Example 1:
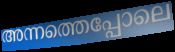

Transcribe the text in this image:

അന്നത്തെപ്പോലെ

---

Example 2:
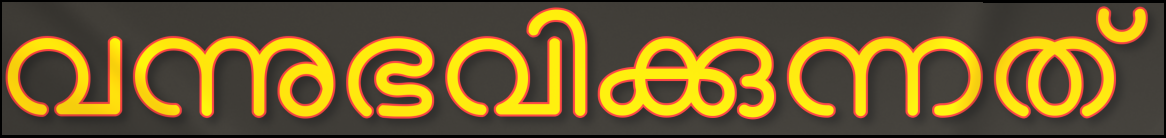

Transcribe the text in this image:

വന്നുഭവിക്കുന്നത്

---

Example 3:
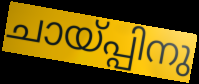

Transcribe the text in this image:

ചായ്പ്പിനു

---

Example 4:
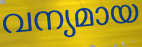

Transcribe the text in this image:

വന്യമായ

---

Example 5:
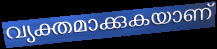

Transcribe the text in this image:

വ്യക്തമാക്കുകയാണ്